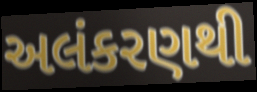
અલંકરણથી